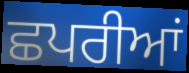
ਛਪਰੀਆਂ